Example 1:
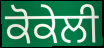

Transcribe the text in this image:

ਕੋਕੇਲੀ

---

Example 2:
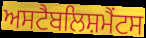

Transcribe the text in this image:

ਅਸਟੈਬਲਿਸ਼ਮੈਂਟਸ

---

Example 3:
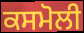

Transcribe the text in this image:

ਕਸਮੋਲੀ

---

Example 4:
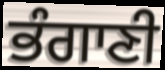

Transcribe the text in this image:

ਭੰਗਾਣੀ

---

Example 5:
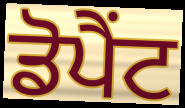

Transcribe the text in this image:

ਡੋਪੈਂਟ